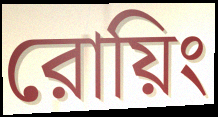
রোয়িং